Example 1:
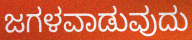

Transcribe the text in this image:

ಜಗಳವಾಡುವುದು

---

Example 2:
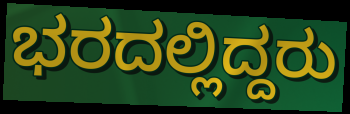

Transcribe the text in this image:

ಭರದಲ್ಲಿದ್ದರು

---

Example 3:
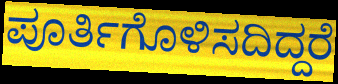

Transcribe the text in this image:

ಪೂರ್ತಿಗೊಳಿಸದಿದ್ದರೆ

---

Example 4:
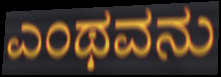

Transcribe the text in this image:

ಎಂಥವನು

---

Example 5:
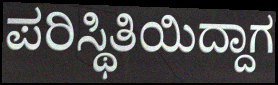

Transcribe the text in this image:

ಪರಿಸ್ಥಿತಿಯಿದ್ದಾಗ